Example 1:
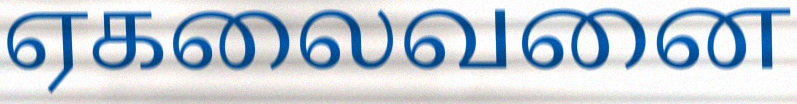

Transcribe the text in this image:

ஏகலைவனை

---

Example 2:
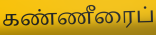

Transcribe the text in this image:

கண்ணீரைப்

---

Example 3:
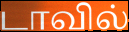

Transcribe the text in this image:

டாவில்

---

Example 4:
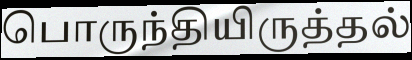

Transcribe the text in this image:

பொருந்தியிருத்தல்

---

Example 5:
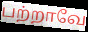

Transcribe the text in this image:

பற்றாவே